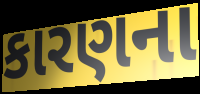
કારણના